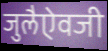
जुलैऐवजी